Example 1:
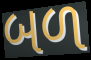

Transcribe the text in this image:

બળ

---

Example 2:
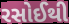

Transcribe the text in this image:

રસોઈથી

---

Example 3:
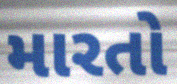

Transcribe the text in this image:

મારતો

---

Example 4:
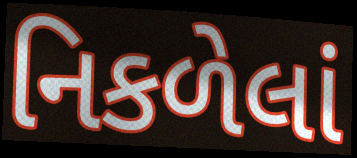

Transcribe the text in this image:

નિકળેલાં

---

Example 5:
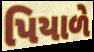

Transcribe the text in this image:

પિયાળે